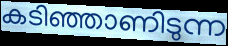
കടിഞ്ഞാണിടുന്ന